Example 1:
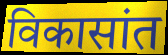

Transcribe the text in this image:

विकासांत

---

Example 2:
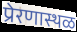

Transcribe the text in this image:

प्रेरणास्थळ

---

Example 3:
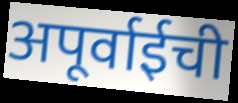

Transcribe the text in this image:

अपूर्वाईची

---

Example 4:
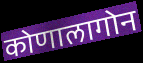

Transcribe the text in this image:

कोणालागोन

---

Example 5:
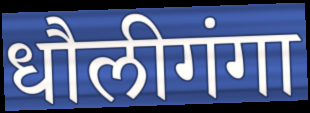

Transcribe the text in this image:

धौलीगंगा